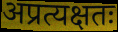
अप्रत्यक्षतः